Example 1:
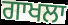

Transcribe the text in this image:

ਗਾਖਲਾ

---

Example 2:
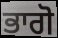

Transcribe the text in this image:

ਭਾਗੋ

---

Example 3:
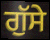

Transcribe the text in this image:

ਗੁੱਸੇ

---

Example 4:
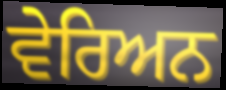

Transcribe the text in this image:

ਵੇਰਿਅਨ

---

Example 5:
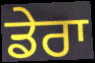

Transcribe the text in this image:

ਡੇਰਾ